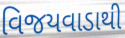
વિજયવાડાથી